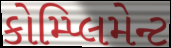
કોમ્પ્લિમેન્ટ